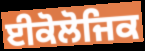
ਈਕੋਲੋਜਿਕ